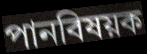
পানবিষয়ক